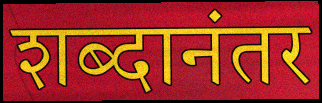
शब्दानंतर